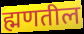
ह्मणतील